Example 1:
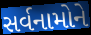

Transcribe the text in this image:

સર્વનામોને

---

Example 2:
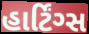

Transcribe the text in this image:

હાર્ટિંગ્સ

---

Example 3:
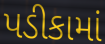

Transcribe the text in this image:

પડીકામાં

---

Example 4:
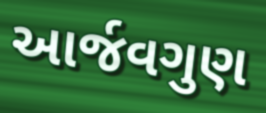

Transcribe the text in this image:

આર્જવગુણ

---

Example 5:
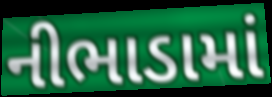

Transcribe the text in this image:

નીભાડામાં